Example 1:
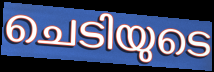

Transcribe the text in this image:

ചെടിയുടെ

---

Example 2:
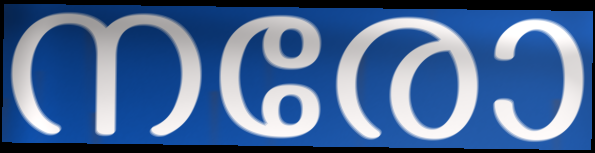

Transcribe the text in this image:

നരോ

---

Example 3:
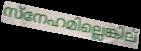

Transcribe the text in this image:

സ്നേഹമില്ലെങ്കില്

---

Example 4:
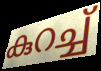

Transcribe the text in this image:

കുറച്ച്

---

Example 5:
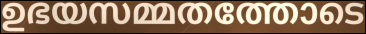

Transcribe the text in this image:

ഉഭയസമ്മതത്തോടെ